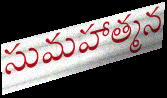
సుమహాత్మన